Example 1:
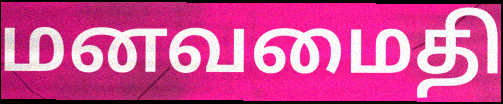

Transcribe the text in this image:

மனவமைதி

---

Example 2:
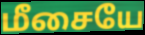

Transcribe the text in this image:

மீசையே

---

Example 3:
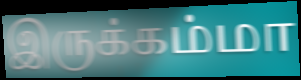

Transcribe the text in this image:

இருக்கம்மா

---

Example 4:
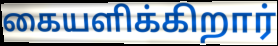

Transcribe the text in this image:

கையளிக்கிறார்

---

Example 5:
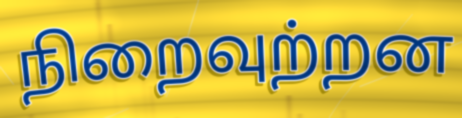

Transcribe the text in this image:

நிறைவுற்றன